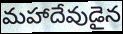
మహాదేవుడైన